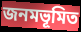
জনমভূমিত